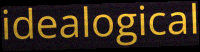
idealogical